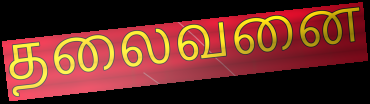
தலைவனை